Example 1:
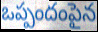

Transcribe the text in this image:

ఒప్పందంపైన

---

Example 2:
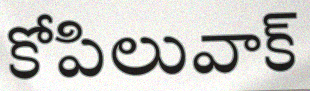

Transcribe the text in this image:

కోపిలువాక్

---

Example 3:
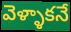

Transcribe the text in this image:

వెళ్ళాకనే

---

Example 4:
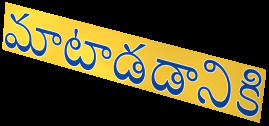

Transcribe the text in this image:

మాటాడడానికి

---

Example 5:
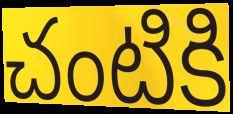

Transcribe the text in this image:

చంటికి